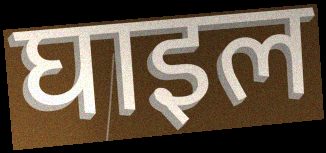
घाइल